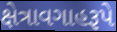
ક્ષેત્રાવગાહરૂપે